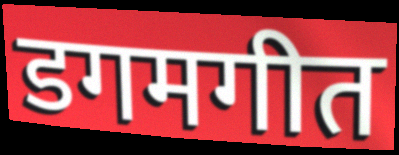
डगमगीत